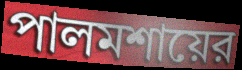
পালমশায়ের